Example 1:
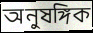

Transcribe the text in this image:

অনুষঙ্গিক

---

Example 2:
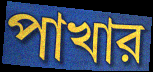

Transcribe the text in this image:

পাখার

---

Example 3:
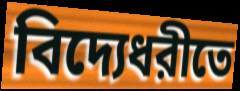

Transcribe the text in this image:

বিদ্যেধরীতে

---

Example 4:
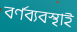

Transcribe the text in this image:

বর্ণব্যবস্থাই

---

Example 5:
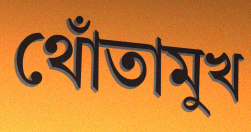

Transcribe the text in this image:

থোঁতামুখ